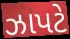
ઝાપટે